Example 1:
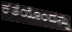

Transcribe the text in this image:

ಕತೆಯೊಂದನ್ನು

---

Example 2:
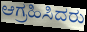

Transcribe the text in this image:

ಆಗ್ರಹಿಸಿದರು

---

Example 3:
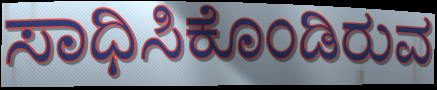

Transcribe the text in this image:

ಸಾಧಿಸಿಕೊಂಡಿರುವ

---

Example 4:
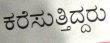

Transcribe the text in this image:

ಕರೆಸುತ್ತಿದ್ದರು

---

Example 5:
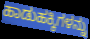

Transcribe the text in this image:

ಹಾಡುಹಕ್ಕಿಗಳನ್ನು